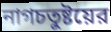
নাগচতুষ্টয়ের